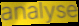
analyse